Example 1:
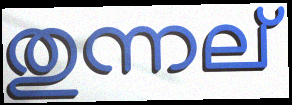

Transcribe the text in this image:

തുന്നല്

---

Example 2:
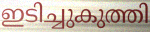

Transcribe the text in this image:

ഇടിച്ചുകുത്തി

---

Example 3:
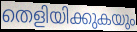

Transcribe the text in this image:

തെളിയിക്കുകയും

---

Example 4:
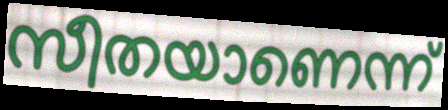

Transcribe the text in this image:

സീതയാണെന്ന്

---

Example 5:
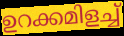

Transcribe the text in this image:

ഉറക്കമിളച്ച്